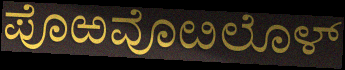
ಪೊಱವೊೞಲೊಳ್